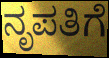
ನೃಪತಿಗೆ